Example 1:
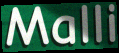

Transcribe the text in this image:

Malli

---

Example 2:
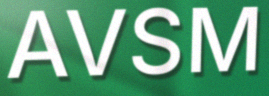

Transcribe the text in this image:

AVSM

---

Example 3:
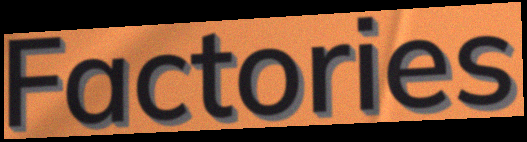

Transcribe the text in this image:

Factories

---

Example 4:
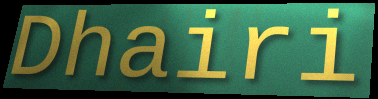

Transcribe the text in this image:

Dhairi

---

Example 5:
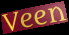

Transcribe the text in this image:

Veen